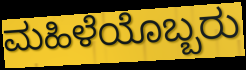
ಮಹಿಳೆಯೊಬ್ಬರು